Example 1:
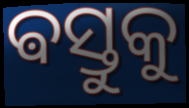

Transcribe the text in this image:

ଵସ୍ତୁକୁ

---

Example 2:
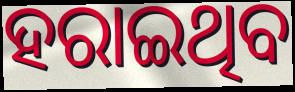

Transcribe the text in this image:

ହରାଇଥିବ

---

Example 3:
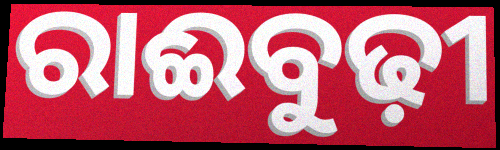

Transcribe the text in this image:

ରାଈବୁଢ଼ୀ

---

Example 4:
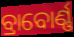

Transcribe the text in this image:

ବ୍ରାବୋର୍ଣ୍ଣ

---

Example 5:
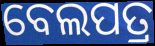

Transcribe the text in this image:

ବେଲପତ୍ର